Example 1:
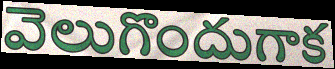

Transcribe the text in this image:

వెలుగొందుగాక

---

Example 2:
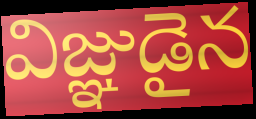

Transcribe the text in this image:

విజ్ఞుడైన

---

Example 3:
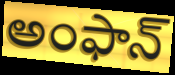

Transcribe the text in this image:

అంఫాన్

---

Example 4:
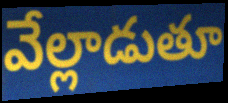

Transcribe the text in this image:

వేల్లాడుతూ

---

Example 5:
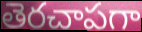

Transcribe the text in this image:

తెరచాపగా